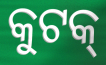
କୁଟକ୍